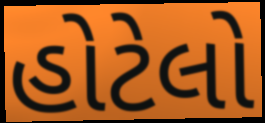
હોટેલો